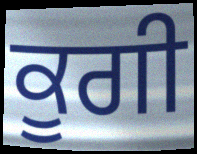
ਕੂਗੀ